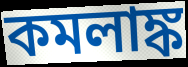
কমলাঙ্ক